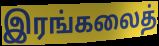
இரங்கலைத்